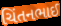
ચિંતનભાઈ